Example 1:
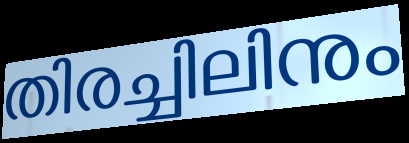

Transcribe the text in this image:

തിരച്ചിലിനും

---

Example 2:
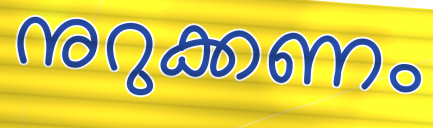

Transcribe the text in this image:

നുറുക്കണം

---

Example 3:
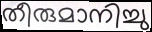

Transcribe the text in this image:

തീരുമാനിച്ചു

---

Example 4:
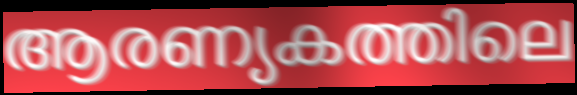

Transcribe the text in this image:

ആരണ്യകത്തിലെ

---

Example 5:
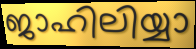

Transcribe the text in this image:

ജാഹിലിയ്യാ